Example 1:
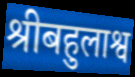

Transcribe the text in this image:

श्रीबहुलाश्व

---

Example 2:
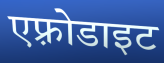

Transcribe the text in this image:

एफ़्रोडाइट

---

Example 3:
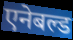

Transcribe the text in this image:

एनेबल्ड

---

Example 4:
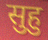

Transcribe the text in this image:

सुहु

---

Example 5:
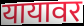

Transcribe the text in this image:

यायावर